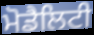
ਮੋਡੈਲਿਟੀ